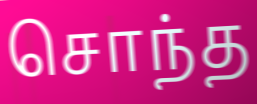
சொந்த